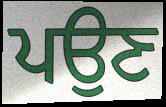
ਪਉਣ